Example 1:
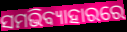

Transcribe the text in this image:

ସମଭିବ୍ୟାହାରରେ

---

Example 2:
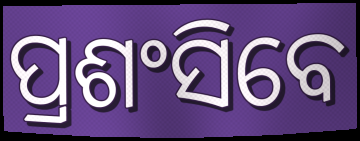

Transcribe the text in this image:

ପ୍ରଶଂସିବେ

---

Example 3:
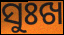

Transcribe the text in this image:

ସୁଃଖ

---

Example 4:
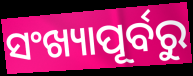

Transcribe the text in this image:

ସଂଖ୍ୟାପୂର୍ବରୁ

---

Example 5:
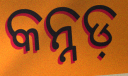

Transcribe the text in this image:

କନ୍ନଡ଼